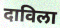
दाविला